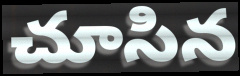
చూసిన